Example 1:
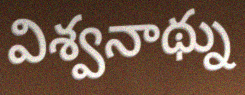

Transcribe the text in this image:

విశ్వనాథ్ను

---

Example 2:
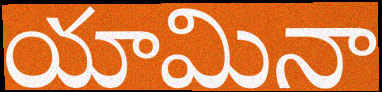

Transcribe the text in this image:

యామినా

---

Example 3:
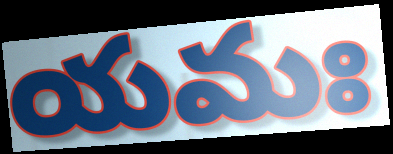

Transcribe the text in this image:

యమః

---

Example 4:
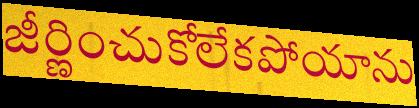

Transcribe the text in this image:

జీర్ణించుకోలేకపోయాను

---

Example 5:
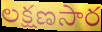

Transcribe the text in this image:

లక్షణసార